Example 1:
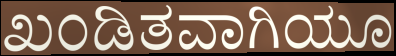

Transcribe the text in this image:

ಖಂಡಿತವಾಗಿಯೂ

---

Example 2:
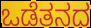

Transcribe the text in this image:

ಒಡೆತನದ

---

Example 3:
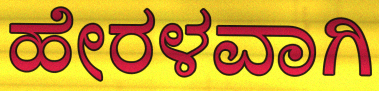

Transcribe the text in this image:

ಹೇರಳವಾಗಿ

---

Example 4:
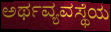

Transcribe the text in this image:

ಅರ್ಥವ್ಯವಸ್ಥೆಯ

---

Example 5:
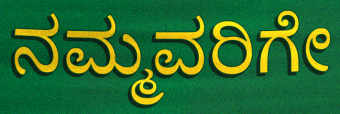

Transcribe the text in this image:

ನಮ್ಮವರಿಗೇ